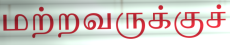
மற்றவருக்குச்